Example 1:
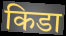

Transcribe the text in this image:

किडा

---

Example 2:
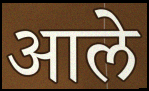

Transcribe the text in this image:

आले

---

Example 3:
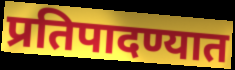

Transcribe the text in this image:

प्रतिपादण्यात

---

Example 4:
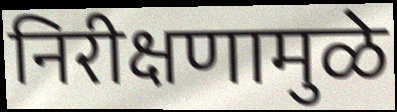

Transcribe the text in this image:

निरीक्षणामुळे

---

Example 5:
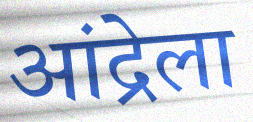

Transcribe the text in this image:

आंद्रेला